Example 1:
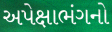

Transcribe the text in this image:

અપેક્ષાભંગનો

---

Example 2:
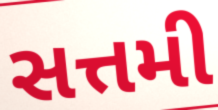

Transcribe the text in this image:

સત્તમી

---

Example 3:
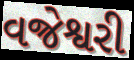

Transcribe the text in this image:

વજ્રેશ્વરી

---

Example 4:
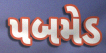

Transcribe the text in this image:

પબમેડ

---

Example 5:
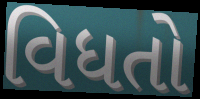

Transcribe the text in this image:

વિધતો